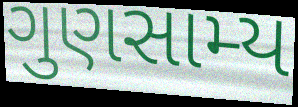
ગુણસામ્ય